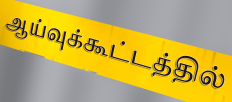
ஆய்வுக்கூட்டத்தில்